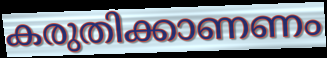
കരുതിക്കാണണം